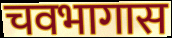
चवभागास